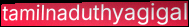
tamilnaduthyagigal